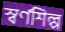
স্বর্ণশিল্প